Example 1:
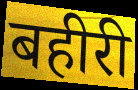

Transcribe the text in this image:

बहीरी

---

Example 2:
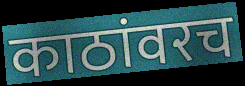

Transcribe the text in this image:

काठांवरच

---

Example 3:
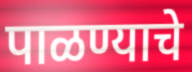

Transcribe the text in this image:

पाळण्याचे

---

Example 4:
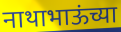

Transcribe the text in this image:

नाथाभाऊंच्या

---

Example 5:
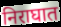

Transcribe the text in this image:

निराघात